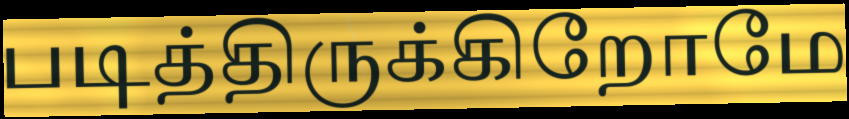
படித்திருக்கிறோமே